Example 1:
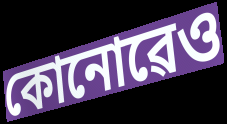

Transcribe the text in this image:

কোনোৱেও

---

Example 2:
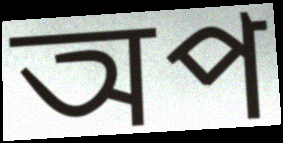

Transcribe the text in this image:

অপ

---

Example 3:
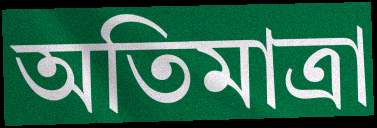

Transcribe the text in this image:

অতিমাত্ৰা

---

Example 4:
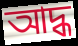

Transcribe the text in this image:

আদ্ধ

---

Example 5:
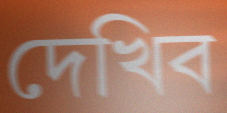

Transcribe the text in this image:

দেখিব